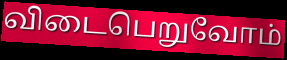
விடைபெறுவோம்